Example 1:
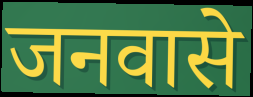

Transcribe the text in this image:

जनवासे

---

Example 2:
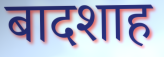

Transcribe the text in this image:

बादशाह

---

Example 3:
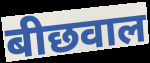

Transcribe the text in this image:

बीछवाल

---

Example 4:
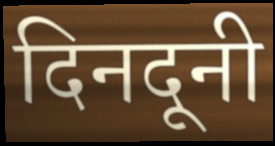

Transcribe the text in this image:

दिनदूनी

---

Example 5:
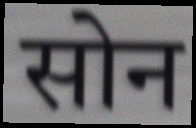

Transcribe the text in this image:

सोन